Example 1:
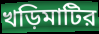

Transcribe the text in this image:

খড়িমাটির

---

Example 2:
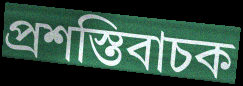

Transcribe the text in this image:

প্রশস্তিবাচক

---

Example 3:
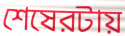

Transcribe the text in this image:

শেষেরটায়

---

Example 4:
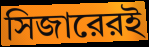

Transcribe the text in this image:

সিজারেরই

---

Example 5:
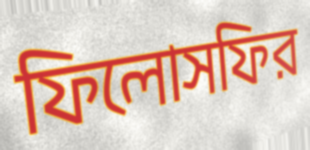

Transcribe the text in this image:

ফিলোসফির